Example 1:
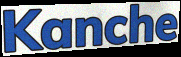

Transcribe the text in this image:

Kanche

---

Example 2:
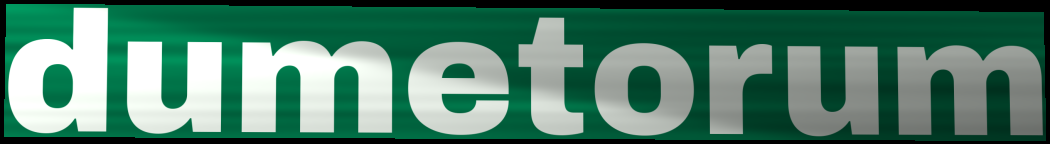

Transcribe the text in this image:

dumetorum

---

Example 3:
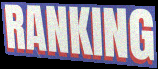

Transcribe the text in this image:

RANKING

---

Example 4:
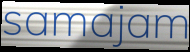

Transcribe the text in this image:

samajam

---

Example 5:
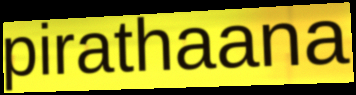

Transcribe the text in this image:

pirathaana